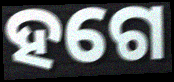
ହଗେ